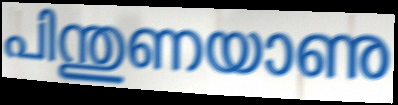
പിന്തുണയാണു